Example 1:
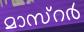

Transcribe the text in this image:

മാസ്റർ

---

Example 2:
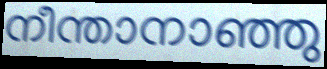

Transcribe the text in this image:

നീന്താനാഞ്ഞു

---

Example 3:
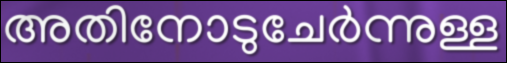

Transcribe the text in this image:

അതിനോടുചേർന്നുള്ള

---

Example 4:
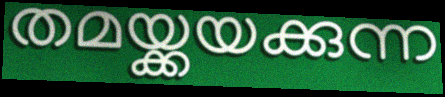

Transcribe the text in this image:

തമയ്ക്കയക്കുന്ന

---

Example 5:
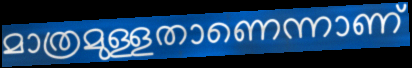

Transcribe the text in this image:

മാത്രമുള്ളതാണെന്നാണ്